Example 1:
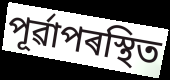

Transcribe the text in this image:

পূৰ্ৱাপৰস্থিত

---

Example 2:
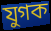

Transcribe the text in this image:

যুগক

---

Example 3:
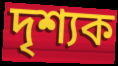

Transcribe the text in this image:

দৃশ্যক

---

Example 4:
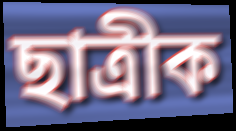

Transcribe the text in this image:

ছাত্ৰীক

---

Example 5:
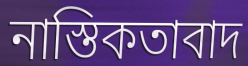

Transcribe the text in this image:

নাস্তিকতাবাদ